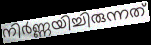
നിർണ്ണയിച്ചിരുന്നത്